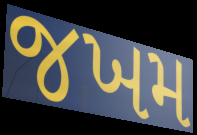
જખમ